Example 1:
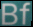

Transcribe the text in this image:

Bf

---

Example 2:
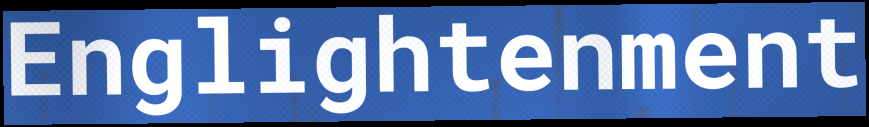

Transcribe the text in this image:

Englightenment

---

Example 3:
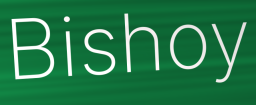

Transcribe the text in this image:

Bishoy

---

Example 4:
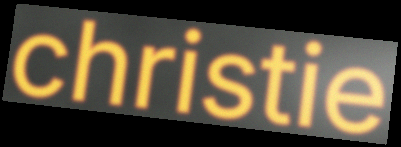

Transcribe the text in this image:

christie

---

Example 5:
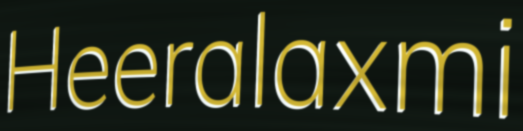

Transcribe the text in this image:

Heeralaxmi